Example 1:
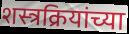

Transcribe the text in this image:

शस्त्रक्रियांच्या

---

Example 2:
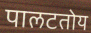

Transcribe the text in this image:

पालटतोय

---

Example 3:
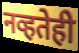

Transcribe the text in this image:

नव्हतेही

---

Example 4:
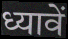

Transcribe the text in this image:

ध्यावें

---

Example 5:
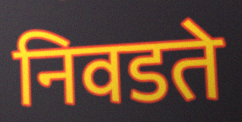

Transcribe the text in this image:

निवडते